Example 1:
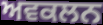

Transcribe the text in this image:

ਅਵਕਲਨ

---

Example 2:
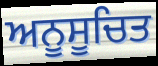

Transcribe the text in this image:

ਅਨੂਸੂਚਿਤ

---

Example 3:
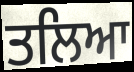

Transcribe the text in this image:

ਤਲਿਆ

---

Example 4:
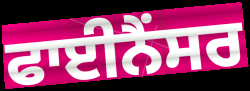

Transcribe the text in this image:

ਫਾਈਨੈਂਸਰ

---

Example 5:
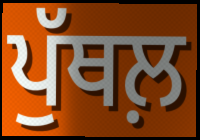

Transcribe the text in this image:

ਪੁੱਥਲ਼